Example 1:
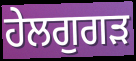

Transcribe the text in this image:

ਹੇਲਗੁਗੜ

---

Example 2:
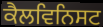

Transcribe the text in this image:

ਕੈਲਵਿਨਿਸਟ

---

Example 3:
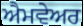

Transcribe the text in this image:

ਐਮਵੇਅਰ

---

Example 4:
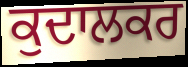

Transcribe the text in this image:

ਕੁਦਾਲਕਰ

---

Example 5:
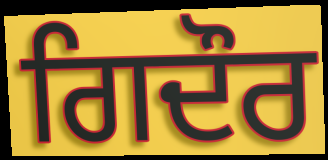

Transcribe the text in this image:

ਗਿਦੌਰ